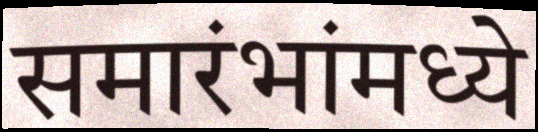
समारंभांमध्ये